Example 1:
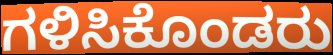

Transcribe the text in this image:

ಗಳಿಸಿಕೊಂಡರು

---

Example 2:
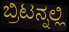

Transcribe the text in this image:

ಬ್ರಿಟನ್ನಲ್ಲಿ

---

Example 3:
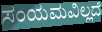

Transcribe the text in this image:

ಸಂಯಮವಿಲ್ಲದೆ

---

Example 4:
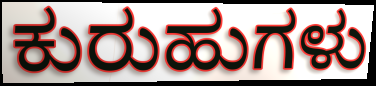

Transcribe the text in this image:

ಕುರುಹುಗಳು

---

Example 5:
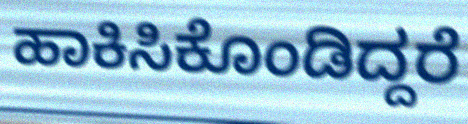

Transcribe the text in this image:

ಹಾಕಿಸಿಕೊಂಡಿದ್ದರೆ